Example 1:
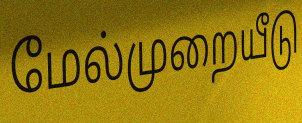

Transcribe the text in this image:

மேல்முறையீடு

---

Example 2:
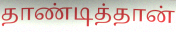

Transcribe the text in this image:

தாண்டித்தான்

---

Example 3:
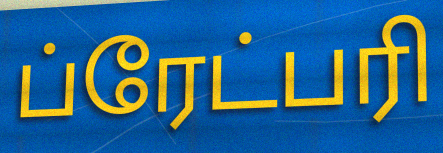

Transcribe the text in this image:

ப்ரேட்பரி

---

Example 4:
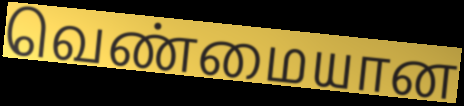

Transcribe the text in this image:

வெண்மையான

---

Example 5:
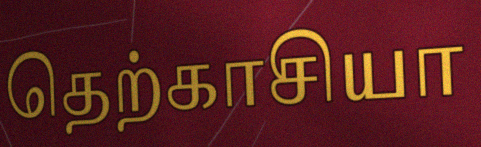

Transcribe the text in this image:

தெற்காசியா